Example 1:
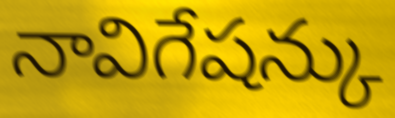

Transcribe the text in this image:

నావిగేషన్కు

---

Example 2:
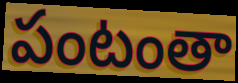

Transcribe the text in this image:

పంటంతా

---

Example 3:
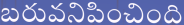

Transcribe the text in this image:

బరువనిపించింది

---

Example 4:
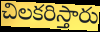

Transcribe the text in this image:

చిలకరిస్తారు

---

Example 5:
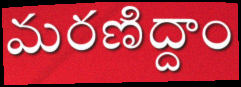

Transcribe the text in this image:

మరణిద్దాం